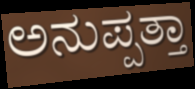
ಅನುಪ್ಪತ್ತಾ